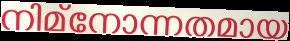
നിമ്നോന്നതമായ